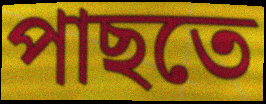
পাছতে